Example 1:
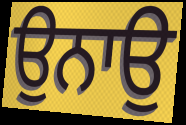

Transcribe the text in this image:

ਉਨਾਉ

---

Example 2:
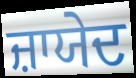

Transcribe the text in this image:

ਜ਼ਾਯੇਦ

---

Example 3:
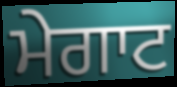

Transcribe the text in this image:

ਮੇਗਾਟ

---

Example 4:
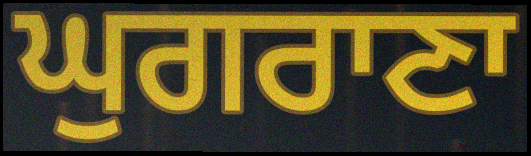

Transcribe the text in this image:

ਘੁਗਰਾਣਾ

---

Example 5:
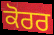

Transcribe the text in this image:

ਕੋਰਰ